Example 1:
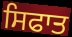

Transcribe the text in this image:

ਸਿਫਾਤ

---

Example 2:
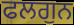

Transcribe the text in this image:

ਫਲਗੁਨ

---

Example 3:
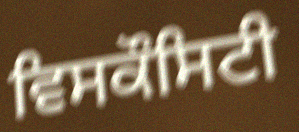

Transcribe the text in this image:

ਵਿਸਕੌਸਿਟੀ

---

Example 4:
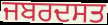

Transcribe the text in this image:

ਜਬਰਦਸਤ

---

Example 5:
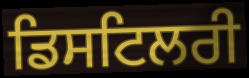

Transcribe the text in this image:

ਡਿਸਟਿਲਰੀ